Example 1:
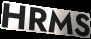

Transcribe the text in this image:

HRMS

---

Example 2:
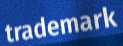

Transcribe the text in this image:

trademark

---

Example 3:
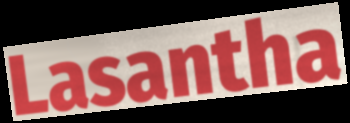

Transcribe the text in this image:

Lasantha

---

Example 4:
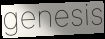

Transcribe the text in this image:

genesis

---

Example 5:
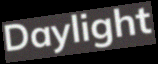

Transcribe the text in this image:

Daylight